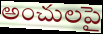
అంచులపై